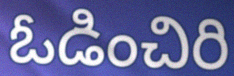
ఓడించిరి